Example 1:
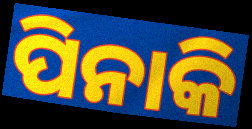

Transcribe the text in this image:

ପିନାକି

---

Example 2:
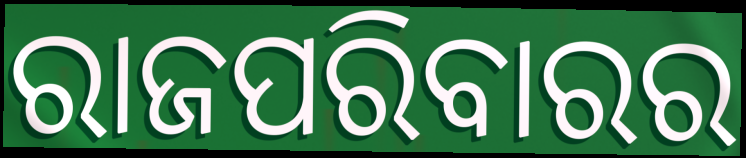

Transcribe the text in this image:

ରାଜପରିବାରର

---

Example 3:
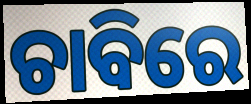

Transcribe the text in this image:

ଚାବିରେ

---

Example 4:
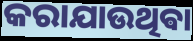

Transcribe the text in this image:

କରାଯାଉଥିଵା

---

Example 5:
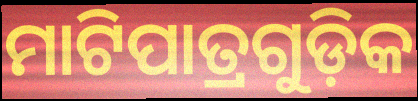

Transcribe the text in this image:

ମାଟିପାତ୍ରଗୁଡ଼ିକ